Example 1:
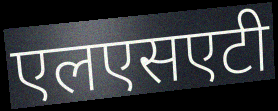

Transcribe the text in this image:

एलएसएटी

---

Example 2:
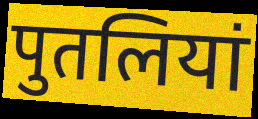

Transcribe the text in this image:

पुतलियां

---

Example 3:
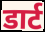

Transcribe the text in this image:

डार्ट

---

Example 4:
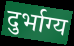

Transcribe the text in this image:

दुर्भाग्य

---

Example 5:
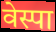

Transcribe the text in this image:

वेस्पा